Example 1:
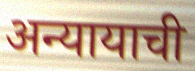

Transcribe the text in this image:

अन्यायाची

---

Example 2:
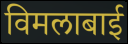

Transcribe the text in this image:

विमलाबाई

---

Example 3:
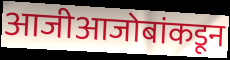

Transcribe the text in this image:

आजीआजोबांकडून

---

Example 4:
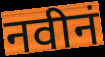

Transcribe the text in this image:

नवीनं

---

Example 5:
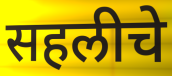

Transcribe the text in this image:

सहलीचे